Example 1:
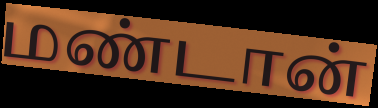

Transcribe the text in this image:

மண்டான்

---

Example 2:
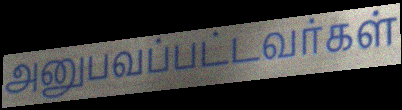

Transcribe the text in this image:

அனுபவப்பட்டவர்கள்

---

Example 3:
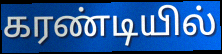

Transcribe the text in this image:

கரண்டியில்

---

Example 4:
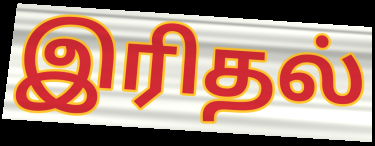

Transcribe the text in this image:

இரிதல்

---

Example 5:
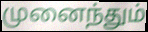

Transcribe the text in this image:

முனைந்தும்